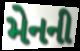
મેનની